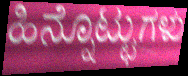
ಹಿನ್ನೊಟ್ಟುಗಳು